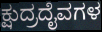
ಕ್ಷುದ್ರದೈವಗಳ